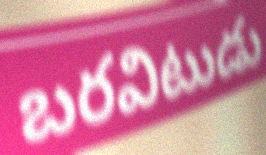
బరవిటుడు